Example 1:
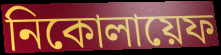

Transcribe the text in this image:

নিকোলায়েফ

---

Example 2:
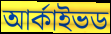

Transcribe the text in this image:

আর্কাইভড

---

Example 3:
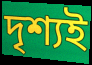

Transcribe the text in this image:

দৃশ্যই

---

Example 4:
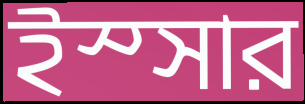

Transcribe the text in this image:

ইস্সার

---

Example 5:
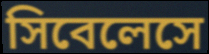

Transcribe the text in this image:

সিবেলেসে